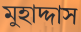
মুহাদ্দাস